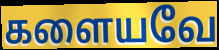
களையவே